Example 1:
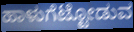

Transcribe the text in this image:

ಹಾಳುಗೆಟ್ಟೋಡುವ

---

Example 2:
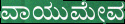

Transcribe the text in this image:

ವಾಯುಮೇವ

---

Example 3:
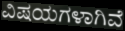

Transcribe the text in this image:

ವಿಷಯಗಳಾಗಿವೆ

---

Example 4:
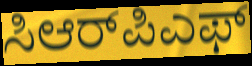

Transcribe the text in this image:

ಸಿಆರ್‌ಪಿಎಫ್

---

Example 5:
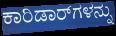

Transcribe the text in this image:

ಕಾರಿಡಾರ್‌ಗಳನ್ನು